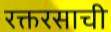
रक्तरसाची